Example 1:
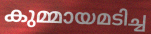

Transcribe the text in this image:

കുമ്മായമടിച്ച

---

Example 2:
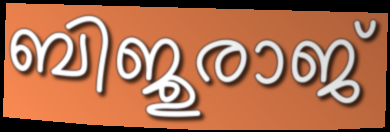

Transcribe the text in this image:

ബിജുരാജ്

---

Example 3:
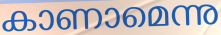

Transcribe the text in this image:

കാണാമെന്നു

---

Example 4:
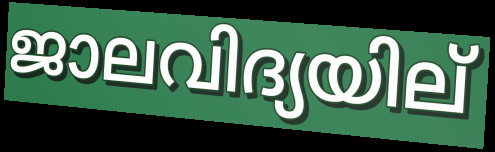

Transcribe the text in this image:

ജാലവിദ്യയില്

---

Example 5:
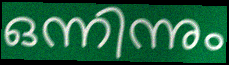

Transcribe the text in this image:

ഒന്നിന്നും